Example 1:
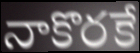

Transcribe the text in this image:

నాకొరకే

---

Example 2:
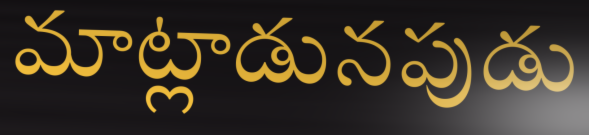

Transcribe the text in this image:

మాట్లాడునపుడు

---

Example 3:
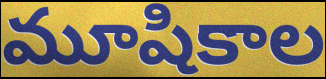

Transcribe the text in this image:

మూషికాల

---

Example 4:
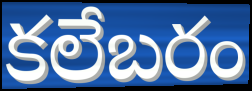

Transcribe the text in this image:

కలేబరం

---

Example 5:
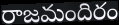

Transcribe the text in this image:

రాజమందిరం